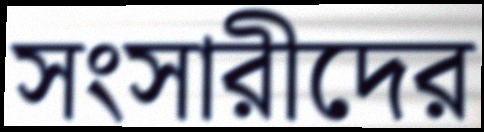
সংসারীদের